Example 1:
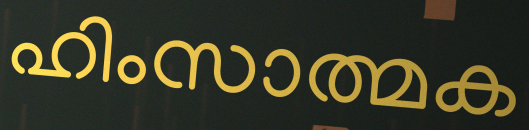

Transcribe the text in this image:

ഹിംസാത്മക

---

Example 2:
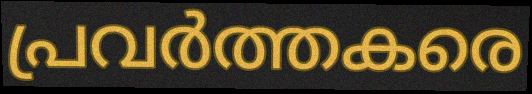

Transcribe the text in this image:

പ്രവർത്തകരെ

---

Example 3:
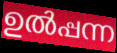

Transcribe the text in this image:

ഉൽപ്പന്ന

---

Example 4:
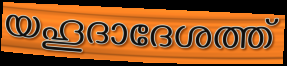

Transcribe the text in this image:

യഹൂദാദേശത്ത്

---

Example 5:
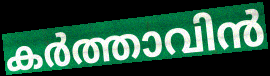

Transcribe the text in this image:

കർത്താവിൻ